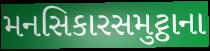
મનસિકારસમુટ્ઠાના